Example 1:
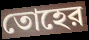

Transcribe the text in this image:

তোহের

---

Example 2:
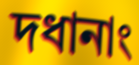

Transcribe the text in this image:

দধানাং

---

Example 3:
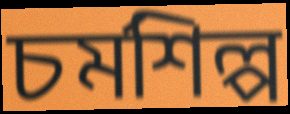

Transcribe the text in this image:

চর্মশিল্প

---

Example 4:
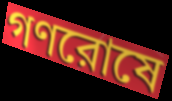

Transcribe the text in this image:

গণরোষে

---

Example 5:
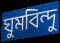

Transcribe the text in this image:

ঘুমবিন্দু